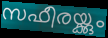
സഫീരയ്ക്കും